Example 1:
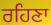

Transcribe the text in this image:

ਰਹਿਣਾ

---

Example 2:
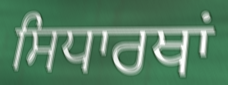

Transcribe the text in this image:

ਸਿਧਾਰਥਾਂ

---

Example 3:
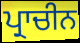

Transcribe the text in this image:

ਪ੍ਰਾਚੀਨ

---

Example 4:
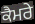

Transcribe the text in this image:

ਕੈਮਰੇ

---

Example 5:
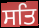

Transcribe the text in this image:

ਸਤਿ